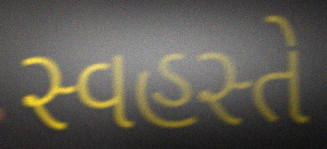
સ્વહસ્તે